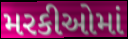
મરકીઓમાં